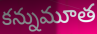
కన్నుమూత